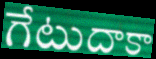
గేటుదాకా